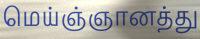
மெய்ஞ்ஞானத்து